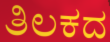
ತಿಲಕದ